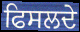
ਫਿਸਲਦੇ